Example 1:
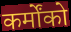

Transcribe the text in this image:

कर्मोंको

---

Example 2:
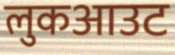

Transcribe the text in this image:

लुकआउट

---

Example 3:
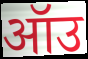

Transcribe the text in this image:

ऑउ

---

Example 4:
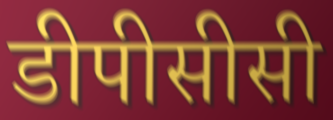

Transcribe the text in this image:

डीपीसीसी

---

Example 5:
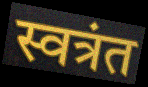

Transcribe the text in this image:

स्वत्रंत